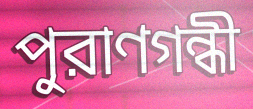
পুরাণগন্ধী